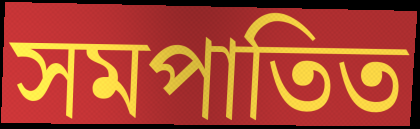
সমপাতিত